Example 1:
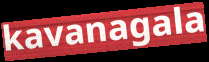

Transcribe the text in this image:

kavanagala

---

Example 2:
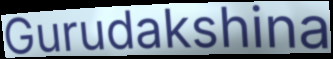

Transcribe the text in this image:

Gurudakshina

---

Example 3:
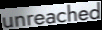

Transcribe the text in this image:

unreached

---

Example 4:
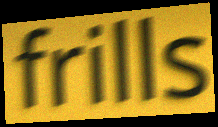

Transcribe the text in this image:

frills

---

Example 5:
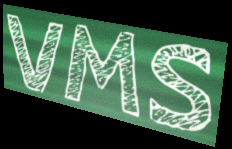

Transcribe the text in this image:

VMS